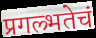
प्रगल्भतेचं